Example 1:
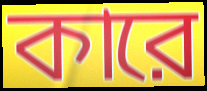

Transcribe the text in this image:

কারে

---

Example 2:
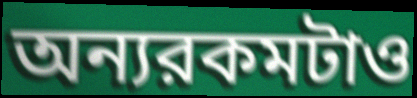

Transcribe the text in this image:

অন্যরকমটাও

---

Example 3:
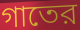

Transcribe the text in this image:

গাতের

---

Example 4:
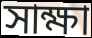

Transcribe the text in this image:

সাক্ষা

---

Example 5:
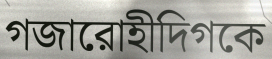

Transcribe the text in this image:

গজারোহীদিগকে